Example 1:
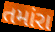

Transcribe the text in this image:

તમાંરા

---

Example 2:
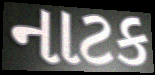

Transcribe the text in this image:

નાટક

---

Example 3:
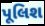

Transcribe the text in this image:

પૂલિશ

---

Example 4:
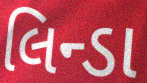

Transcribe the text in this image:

લિન્ડા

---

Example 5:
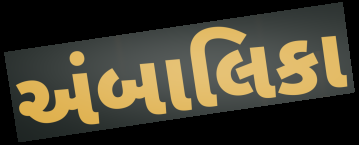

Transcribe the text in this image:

અંબાલિકા